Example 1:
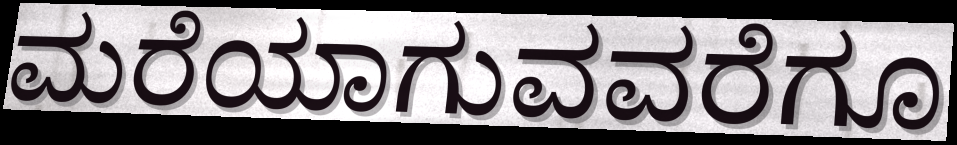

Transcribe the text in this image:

ಮರೆಯಾಗುವವರೆಗೂ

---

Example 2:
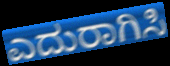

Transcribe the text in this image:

ಎದುರಾಗಿಸಿ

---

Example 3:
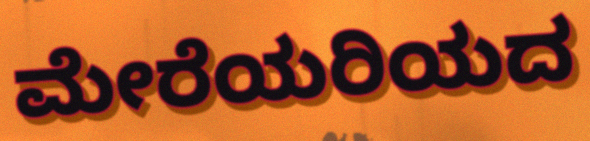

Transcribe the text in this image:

ಮೇರೆಯರಿಯದ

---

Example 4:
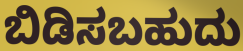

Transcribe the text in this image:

ಬಿಡಿಸಬಹುದು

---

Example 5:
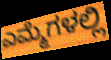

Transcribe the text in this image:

ಎಮ್ಮೆಗಳಲ್ಲಿ